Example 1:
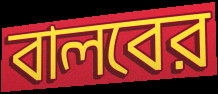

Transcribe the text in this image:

বালবের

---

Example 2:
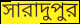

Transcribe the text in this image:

সারাদুপুর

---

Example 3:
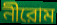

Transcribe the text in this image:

নীরোম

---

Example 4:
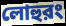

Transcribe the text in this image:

লোহুরং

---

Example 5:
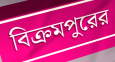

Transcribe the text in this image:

বিক্রমপুরের